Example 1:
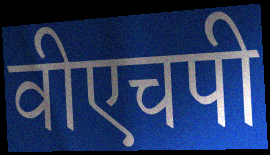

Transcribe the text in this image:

वीएचपी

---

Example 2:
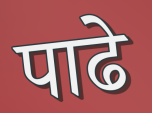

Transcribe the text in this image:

पाढे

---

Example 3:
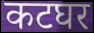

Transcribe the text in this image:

कटघर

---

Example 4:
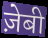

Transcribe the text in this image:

ज़ेबी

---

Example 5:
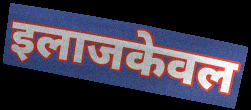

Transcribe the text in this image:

इलाजकेवल